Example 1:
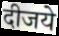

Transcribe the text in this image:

दीजये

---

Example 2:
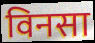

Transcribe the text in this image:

विनसा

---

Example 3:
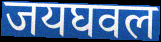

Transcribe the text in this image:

जयघवल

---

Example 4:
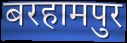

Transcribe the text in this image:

बरहामपुर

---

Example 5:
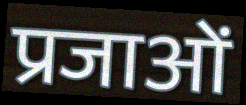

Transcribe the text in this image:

प्रजाओं